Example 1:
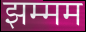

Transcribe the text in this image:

झम्मम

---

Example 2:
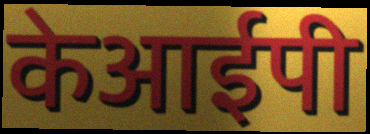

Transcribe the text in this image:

केआईपी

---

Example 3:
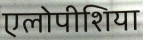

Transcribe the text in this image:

एलोपीशिया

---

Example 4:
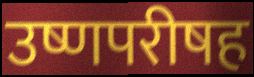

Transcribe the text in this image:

उष्णपरीषह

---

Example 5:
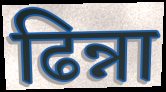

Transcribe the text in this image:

ढिन्ना